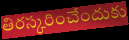
తిరస్కరించేందుకు